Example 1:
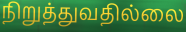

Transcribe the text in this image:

நிறுத்துவதில்லை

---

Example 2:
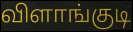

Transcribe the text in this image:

விளாங்குடி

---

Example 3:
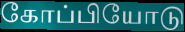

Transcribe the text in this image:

கோப்பியோடு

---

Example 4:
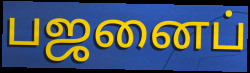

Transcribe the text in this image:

பஜனைப்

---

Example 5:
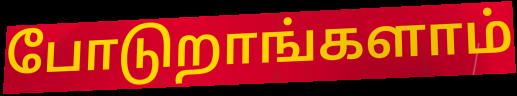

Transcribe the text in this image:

போடுறாங்களாம்